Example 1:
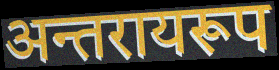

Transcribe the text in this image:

अन्तरायरूप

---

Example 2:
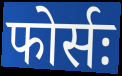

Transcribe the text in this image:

फोर्सः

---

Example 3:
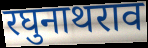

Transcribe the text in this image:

रघुनाथराव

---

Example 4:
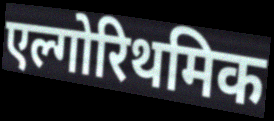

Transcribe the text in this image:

एल्गोरिथमिक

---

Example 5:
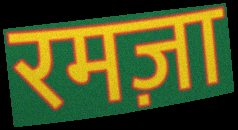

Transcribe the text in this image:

रमज़ा